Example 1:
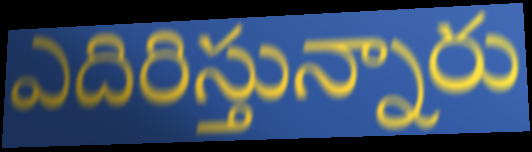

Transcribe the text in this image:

ఎదిరిస్తున్నారు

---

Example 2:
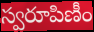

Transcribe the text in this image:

స్వరూపిణీం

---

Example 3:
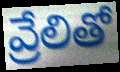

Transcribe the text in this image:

వ్రేలితో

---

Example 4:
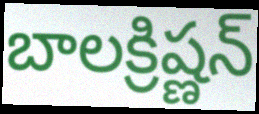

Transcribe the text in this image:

బాలక్రిష్ణన్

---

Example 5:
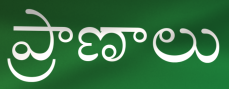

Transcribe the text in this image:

ప్రాణాలు